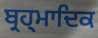
ਬ੍ਰਹ੍ਮਾਦਿਕ